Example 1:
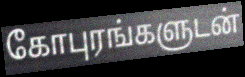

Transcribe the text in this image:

கோபுரங்களுடன்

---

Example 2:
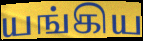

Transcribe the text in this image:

யங்கிய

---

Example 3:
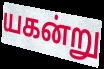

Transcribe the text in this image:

யகன்று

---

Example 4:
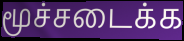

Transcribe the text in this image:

மூச்சடைக்க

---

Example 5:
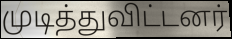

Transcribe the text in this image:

முடித்துவிட்டனர்